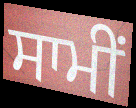
ਸਾਮੀਂ